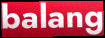
balang